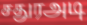
சதுரஅடி